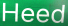
Heed